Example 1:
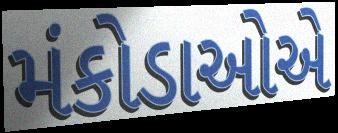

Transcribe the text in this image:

મંકોડાઓએ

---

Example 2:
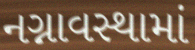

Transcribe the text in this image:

નગ્નાવસ્થામાં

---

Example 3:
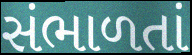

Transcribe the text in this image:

સંભાળતાં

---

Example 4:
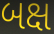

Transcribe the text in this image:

બક્ષ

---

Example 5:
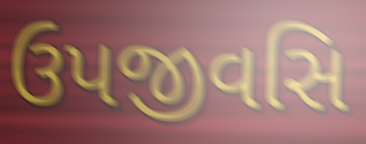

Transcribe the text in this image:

ઉપજીવસિ